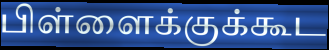
பிள்ளைக்குக்கூட